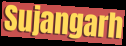
Sujangarh